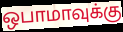
ஒபாமாவுக்கு